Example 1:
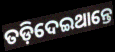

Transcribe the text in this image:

ତଡ଼ିଦେଇଥାନ୍ତେ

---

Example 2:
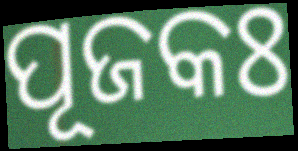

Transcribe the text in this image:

ପୂଜକଃ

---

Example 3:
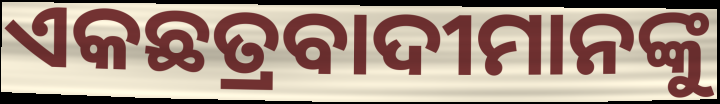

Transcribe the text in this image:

ଏକଛତ୍ରବାଦୀମାନଙ୍କୁ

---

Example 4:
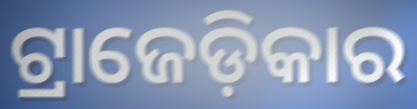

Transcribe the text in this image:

ଟ୍ରାଜେଡ଼ିକାର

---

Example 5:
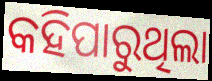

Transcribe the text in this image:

କହିପାରୁଥିଲା